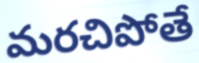
మరచిపోతే